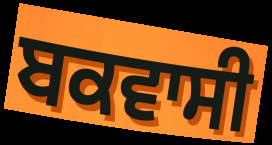
ਬਕਵਾਸੀ